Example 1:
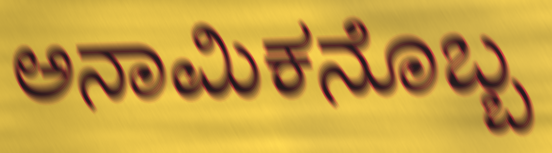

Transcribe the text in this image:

ಅನಾಮಿಕನೊಬ್ಬ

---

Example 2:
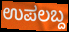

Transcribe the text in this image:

ಉಪಲಬ್ದ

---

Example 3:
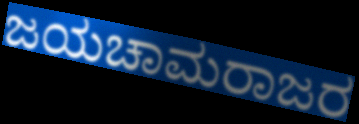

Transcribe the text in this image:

ಜಯಚಾಮರಾಜರ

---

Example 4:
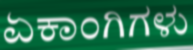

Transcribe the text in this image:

ಏಕಾಂಗಿಗಳು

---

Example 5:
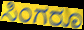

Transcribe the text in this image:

ಸಿಂಗರೂ